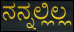
ನನ್ನಲ್ಲಿಲ್ಲ